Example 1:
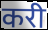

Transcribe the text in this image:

करी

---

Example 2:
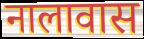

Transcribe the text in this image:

नालावास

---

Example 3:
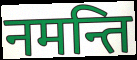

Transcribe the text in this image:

नमन्ति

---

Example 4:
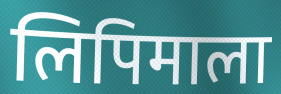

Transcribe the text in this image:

लिपिमाला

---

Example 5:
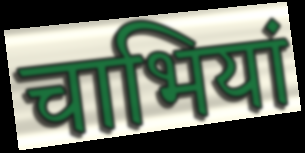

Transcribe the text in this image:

चाभियां